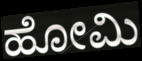
ಹೋಮಿ